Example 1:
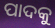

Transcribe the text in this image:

ପାଦକୁ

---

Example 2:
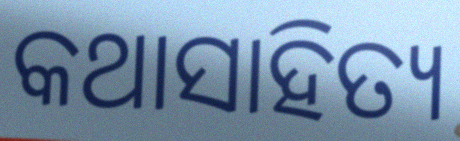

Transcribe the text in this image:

କଥାସାହିତ୍ୟ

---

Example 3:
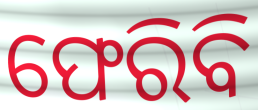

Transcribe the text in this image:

ଫେରିବି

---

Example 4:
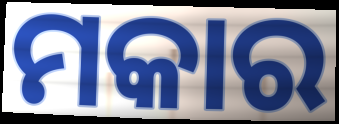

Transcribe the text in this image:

ମକାର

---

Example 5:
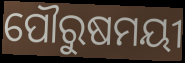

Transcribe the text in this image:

ପୌରୁଷମୟୀ